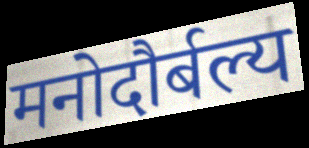
मनोदौर्बल्य